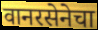
वानरसेनेचा